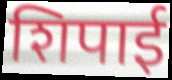
शिपाई